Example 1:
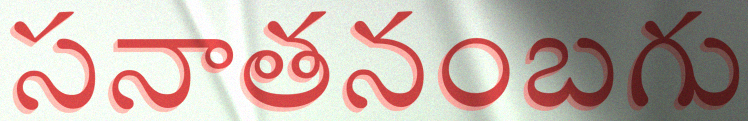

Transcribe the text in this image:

సనాతనంబగు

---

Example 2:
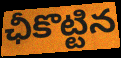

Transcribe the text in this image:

ఛీకొట్టిన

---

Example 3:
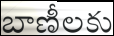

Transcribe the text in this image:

బాణీలకు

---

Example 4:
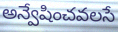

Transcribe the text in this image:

అన్వేషించవలసే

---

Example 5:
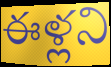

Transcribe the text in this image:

ఈళ్లని